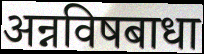
अन्नविषबाधा